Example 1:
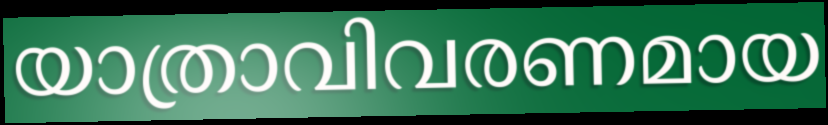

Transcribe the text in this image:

യാത്രാവിവരണമായ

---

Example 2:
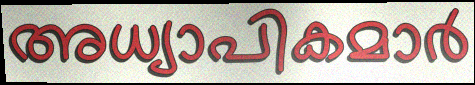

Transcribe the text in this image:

അധ്യാപികമാർ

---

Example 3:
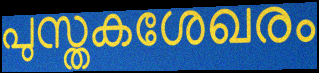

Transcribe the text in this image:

പുസ്തകശേഖരം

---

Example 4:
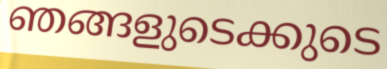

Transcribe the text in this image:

ഞങ്ങളുടെക്കുടെ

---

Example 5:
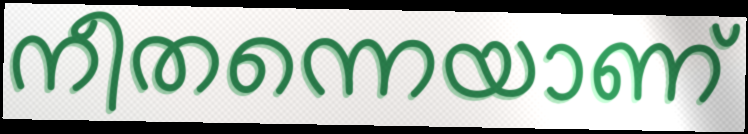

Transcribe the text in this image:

നീതന്നെയാണ്